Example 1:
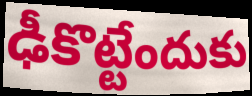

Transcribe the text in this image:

ఢీకొట్టేందుకు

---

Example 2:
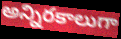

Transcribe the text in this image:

అన్నిరకాలుగా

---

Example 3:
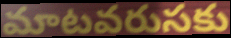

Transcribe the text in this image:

మాటవరుసకు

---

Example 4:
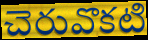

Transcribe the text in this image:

చెరువొకటి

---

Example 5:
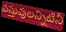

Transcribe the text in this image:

వస్తువులన్నిటినీ